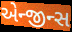
એન્જીન્સ